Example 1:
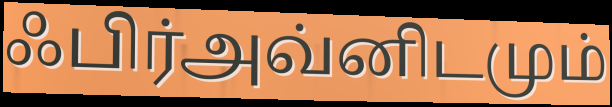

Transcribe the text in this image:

ஃபிர்அவ்னிடமும்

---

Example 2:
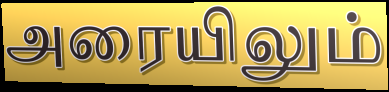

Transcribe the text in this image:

அரையிலும்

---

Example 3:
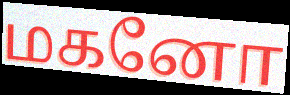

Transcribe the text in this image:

மகனோ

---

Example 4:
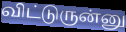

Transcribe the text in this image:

விட்டுருன்னு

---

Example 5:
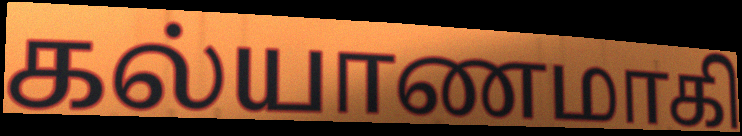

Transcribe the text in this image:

கல்யாணமாகி